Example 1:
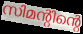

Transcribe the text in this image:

സിമന്റിന്റെ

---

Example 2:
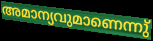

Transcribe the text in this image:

അമാന്യവുമാണെന്നു്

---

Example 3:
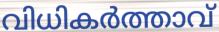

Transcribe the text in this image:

വിധികർത്താവ്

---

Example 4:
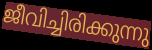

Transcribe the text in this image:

ജീവിച്ചിരിക്കുന്നു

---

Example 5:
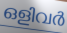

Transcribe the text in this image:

ഒളിവർ